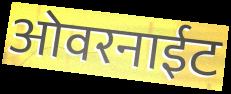
ओवरनाईट